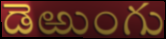
డెఱుంగు